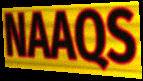
NAAQS